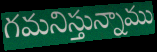
గమనిస్తున్నాము